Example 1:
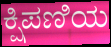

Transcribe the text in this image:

ಕ್ಷಿಪಣಿಯ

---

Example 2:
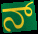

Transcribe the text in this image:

ನ್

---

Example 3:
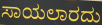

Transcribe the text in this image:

ಸಾಯಲಾರದು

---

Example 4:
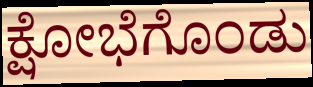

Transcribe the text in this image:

ಕ್ಷೋಭೆಗೊಂಡು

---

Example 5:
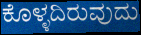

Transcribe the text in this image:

ಕೊಳ್ಳದಿರುವುದು